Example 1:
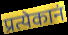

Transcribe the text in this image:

प्रत्येकानं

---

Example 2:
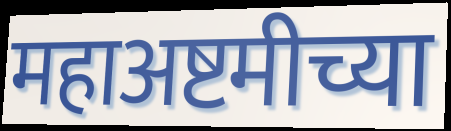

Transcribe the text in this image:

महाअष्टमीच्या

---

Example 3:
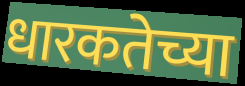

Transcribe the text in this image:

धारकतेच्या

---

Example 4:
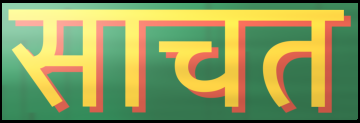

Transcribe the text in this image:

साचत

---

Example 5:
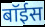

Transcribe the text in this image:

बॉईस